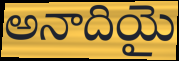
అనాదియై